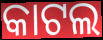
କାଟଲ